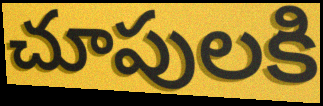
చూపులకి